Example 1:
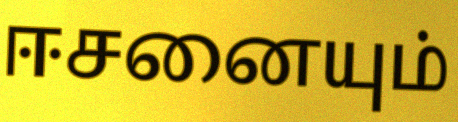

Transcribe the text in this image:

ஈசனையும்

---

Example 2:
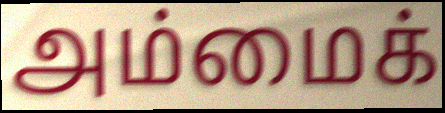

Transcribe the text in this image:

அம்மைக்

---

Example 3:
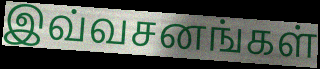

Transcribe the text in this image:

இவ்வசனங்கள்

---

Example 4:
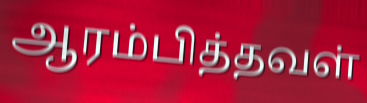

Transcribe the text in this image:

ஆரம்பித்தவள்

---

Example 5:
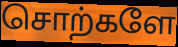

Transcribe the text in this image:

சொற்களே